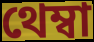
থেম্বা